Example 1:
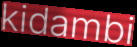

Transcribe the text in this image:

kidambi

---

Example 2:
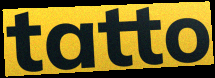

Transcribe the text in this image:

tatto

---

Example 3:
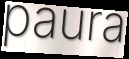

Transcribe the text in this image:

paura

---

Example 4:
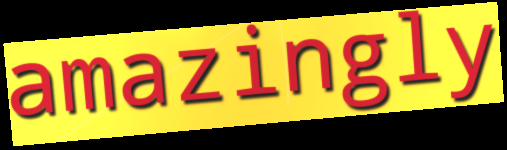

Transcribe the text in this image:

amazingly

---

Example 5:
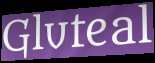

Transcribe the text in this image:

Gluteal